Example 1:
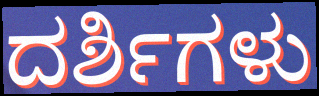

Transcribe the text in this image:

ದರ್ಶಿಗಳು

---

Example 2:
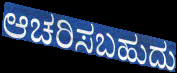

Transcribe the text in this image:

ಆಚರಿಸಬಹುದು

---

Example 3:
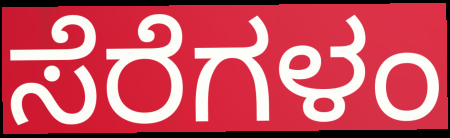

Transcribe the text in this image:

ಸೆರೆಗಳಂ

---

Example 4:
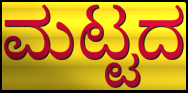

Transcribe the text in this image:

ಮಟ್ಟದ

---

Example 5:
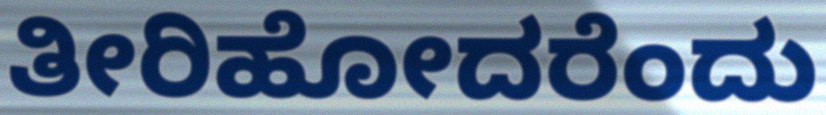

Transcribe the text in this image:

ತೀರಿಹೋದರೆಂದು